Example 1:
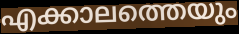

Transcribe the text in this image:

എക്കാലത്തെയും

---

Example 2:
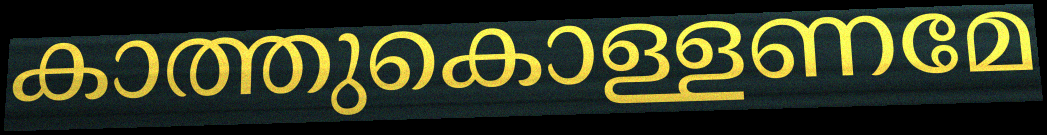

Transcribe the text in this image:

കാത്തുകൊള്ളണമേ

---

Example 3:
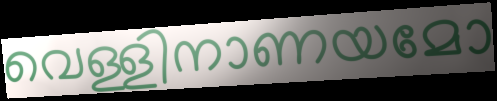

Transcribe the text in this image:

വെള്ളിനാണയമോ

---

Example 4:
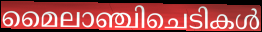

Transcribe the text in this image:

മൈലാഞ്ചിചെടികൾ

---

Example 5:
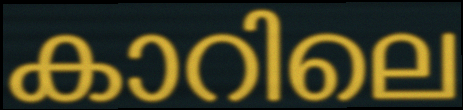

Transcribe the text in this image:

കാറിലെ